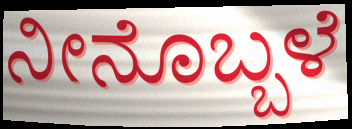
ನೀನೊಬ್ಬಳೆ